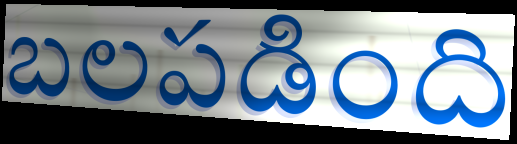
బలపడింది